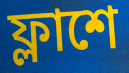
ফ্লাশে